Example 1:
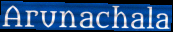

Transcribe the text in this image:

Arunachala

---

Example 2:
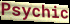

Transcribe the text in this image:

Psychic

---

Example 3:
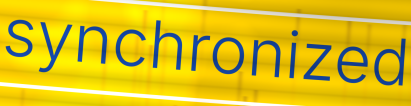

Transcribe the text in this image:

synchronized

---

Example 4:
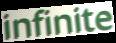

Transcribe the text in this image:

infinite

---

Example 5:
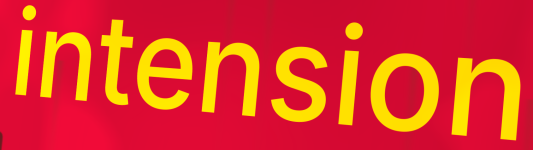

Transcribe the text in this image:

intension